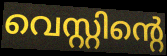
വെസ്റ്റിന്റെ